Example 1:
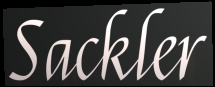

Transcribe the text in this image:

Sackler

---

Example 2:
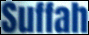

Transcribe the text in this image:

Suffah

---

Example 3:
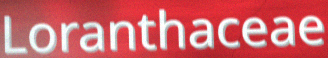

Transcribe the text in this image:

Loranthaceae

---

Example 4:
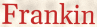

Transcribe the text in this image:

Frankin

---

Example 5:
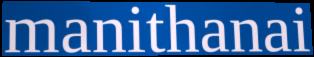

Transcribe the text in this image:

manithanai